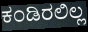
ಕಂಡಿರಲಿಲ್ಲ